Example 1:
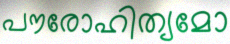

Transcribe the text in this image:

പൗരോഹിത്യമോ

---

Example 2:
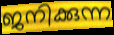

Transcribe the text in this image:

ജനിക്കുന്ന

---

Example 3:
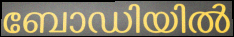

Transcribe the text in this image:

ബോഡിയിൽ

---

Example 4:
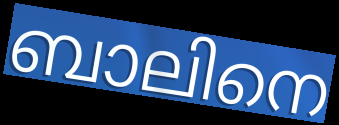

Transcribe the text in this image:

ബാലിനെ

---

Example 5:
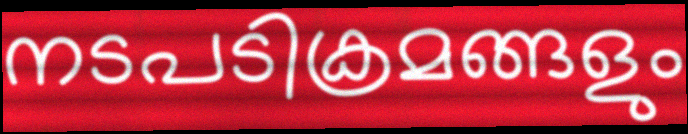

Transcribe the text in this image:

നടപടിക്രമങ്ങളും